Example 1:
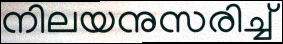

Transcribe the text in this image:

നിലയനുസരിച്ച്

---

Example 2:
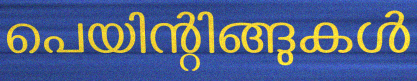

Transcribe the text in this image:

പെയിന്റിങ്ങുകൾ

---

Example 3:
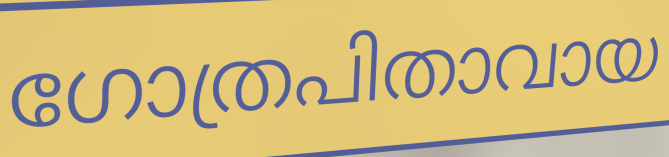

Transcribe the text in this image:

ഗോത്രപിതാവായ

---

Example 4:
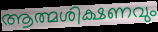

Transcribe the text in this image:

ആത്മശിക്ഷണവും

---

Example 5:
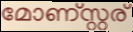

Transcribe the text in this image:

മോണ്സ്റ്റര്